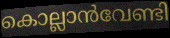
കൊല്ലാൻവേണ്ടി